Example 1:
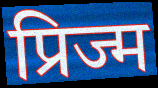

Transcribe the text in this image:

प्रिज्म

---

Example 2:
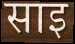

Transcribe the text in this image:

साइ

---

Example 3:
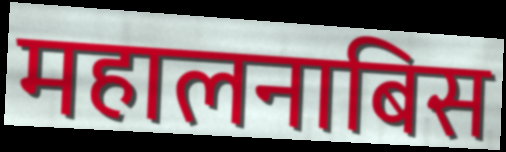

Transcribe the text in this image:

महालनाबिस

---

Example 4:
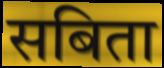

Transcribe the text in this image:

सबिता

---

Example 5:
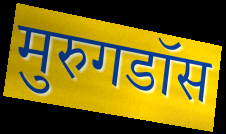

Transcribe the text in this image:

मुरुगडॉस